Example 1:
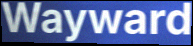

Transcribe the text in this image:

Wayward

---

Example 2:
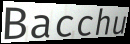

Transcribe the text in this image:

Bacchu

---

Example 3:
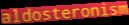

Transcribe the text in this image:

aldosteronism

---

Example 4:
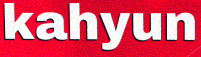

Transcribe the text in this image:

kahyun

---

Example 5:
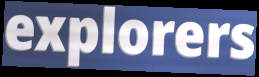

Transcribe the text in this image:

explorers